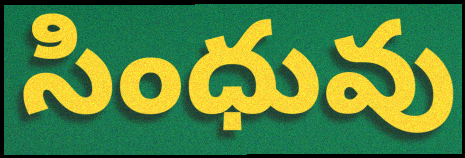
సింధువు